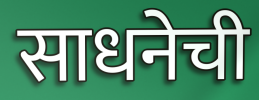
साधनेची